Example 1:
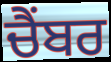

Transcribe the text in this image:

ਚੈਂਬਰ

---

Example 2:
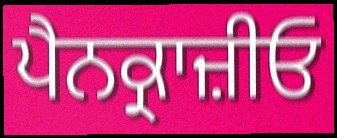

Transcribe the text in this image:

ਪੈਨਕ੍ਰਾਜ਼ੀਓ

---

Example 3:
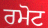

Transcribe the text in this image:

ਰਮੋਟ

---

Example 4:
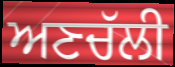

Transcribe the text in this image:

ਅਣਚੱਲੀ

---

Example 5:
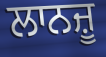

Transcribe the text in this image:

ਲਾਨਜ਼ੂ